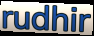
rudhir